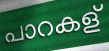
പാറകള്